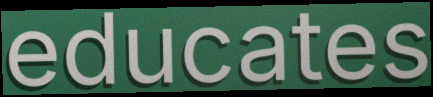
educates